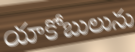
యాకోబులును